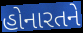
હોનારતને